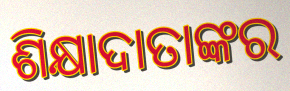
ଶିକ୍ଷାଦାତାଙ୍କର